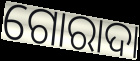
ଗୋରାଦା